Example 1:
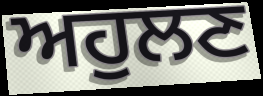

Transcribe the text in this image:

ਅਹੁਲਣ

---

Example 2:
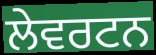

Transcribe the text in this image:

ਲੇਵਰਟਨ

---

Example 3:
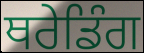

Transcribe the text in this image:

ਥਰੇਡਿੰਗ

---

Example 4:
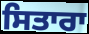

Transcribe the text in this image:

ਸਿਤਾਰਾ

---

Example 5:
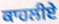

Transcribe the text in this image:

ਕਾਹਲੀਏ